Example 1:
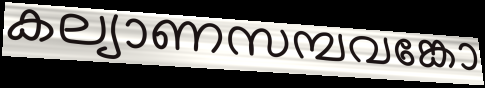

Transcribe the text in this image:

കല്യാണസമ്പവങ്കോ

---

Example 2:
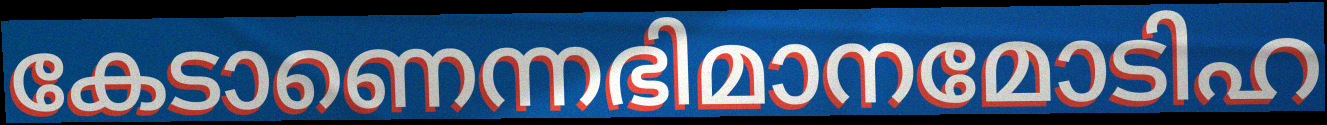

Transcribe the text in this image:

കേടാണെന്നഭിമാനമോടിഹ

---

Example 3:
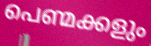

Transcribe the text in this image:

പെണ്മക്കളും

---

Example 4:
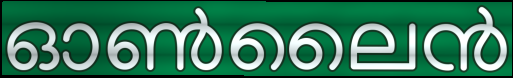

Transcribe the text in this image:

ഓൺലൈൻ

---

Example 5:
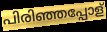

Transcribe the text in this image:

പിരിഞ്ഞപ്പോള്